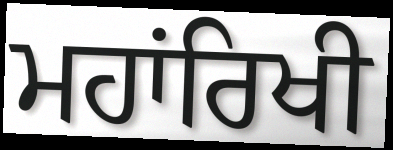
ਮਹਾਂਰਿਖੀ